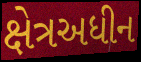
ક્ષેત્રઅધીન